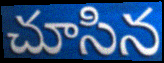
చూసిన